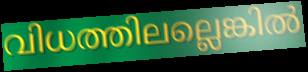
വിധത്തിലല്ലെങ്കിൽ